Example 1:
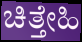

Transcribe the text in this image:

ಚಿತ್ತೇಹಿ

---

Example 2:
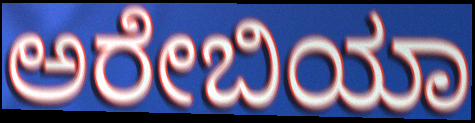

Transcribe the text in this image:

ಅರೇಬಿಯಾ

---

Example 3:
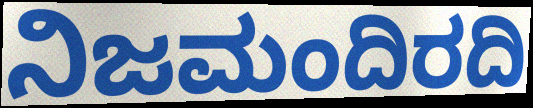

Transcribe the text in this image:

ನಿಜಮಂದಿರದಿ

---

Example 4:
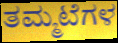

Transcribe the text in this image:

ತಮ್ಮಟೆಗಳ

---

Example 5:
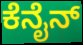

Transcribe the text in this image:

ಕೆನೈನ್